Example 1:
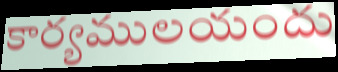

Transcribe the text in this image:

కార్యములయందు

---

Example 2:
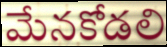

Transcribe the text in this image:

మేనకోడలి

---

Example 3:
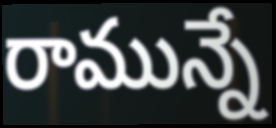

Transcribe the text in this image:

రామున్నే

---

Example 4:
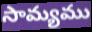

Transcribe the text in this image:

సామ్యము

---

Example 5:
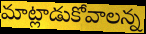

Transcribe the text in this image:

మాట్లాడుకోవాలన్న